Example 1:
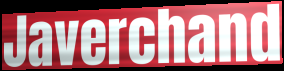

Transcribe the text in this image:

Javerchand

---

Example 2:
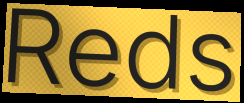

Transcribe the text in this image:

Reds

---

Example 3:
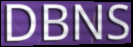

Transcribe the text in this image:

DBNS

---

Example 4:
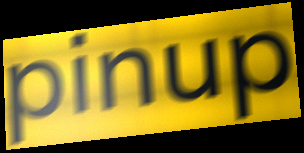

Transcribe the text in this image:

pinup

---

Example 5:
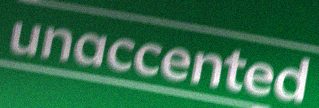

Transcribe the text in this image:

unaccented